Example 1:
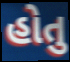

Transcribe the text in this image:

હોતુ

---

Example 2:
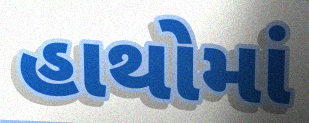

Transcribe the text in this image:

હાથોમાં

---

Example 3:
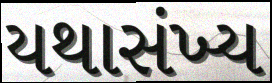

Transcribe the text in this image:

યથાસંખ્ય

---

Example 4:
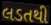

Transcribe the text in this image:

લડતથી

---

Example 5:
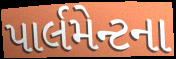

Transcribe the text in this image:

પાર્લમેન્ટના